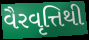
વૈરવૃત્તિથી